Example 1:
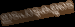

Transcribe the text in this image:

ഇടപാടുകളുടെ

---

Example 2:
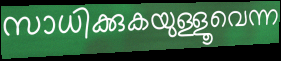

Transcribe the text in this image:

സാധിക്കുകയുള്ളൂവെന്ന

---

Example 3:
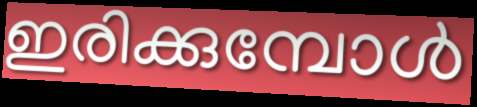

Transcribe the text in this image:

ഇരിക്കുമ്പോൾ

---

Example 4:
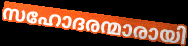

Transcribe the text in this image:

സഹോദരന്മാരായി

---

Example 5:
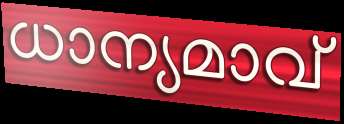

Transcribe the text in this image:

ധാന്യമാവ്